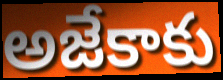
అజేకాకు